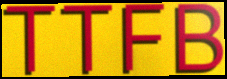
TTFB